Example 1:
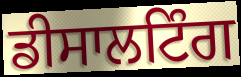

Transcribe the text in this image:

ਡੀਸਾਲਟਿੰਗ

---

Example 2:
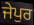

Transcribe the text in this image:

ਜੇਪੁਰ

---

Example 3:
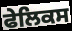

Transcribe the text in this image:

ਫੇਲਿਕਸ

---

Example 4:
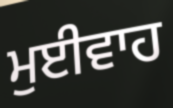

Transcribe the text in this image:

ਮੁਈਵਾਹ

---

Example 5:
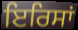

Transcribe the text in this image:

ਇਰਿਸਾਂ